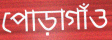
পোড়াগাঁও